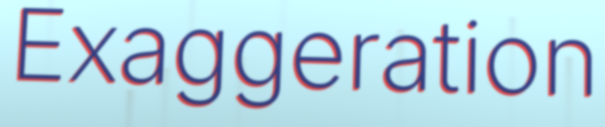
Exaggeration